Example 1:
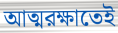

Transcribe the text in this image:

আত্মরক্ষাতেই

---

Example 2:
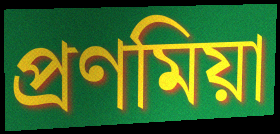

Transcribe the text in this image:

প্রণমিয়া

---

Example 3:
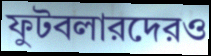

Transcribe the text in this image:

ফুটবলারদেরও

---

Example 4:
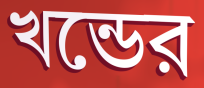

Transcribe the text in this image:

খন্ডের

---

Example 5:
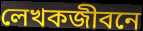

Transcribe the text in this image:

লেখকজীবনে